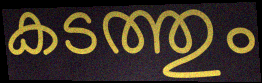
കടത്തും